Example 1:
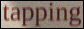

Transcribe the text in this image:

tapping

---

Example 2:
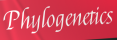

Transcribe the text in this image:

Phylogenetics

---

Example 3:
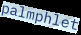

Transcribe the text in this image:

palmphlet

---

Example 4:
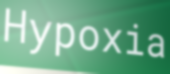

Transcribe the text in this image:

Hypoxia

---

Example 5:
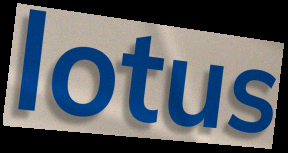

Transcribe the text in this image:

lotus